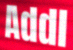
Addl